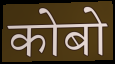
कोबो